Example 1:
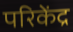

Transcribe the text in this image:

परिकेंद्र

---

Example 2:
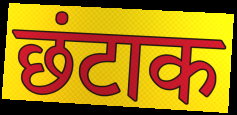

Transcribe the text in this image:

छंटाक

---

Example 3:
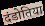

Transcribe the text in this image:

दंडोतिया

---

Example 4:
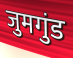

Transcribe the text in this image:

जुमगुंड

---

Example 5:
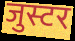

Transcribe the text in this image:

जुस्टर